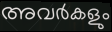
അവർകളും